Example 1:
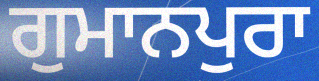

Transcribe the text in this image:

ਗੁਮਾਨਪੁਰਾ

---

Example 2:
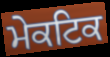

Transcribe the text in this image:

ਮੇਕਟਿਕ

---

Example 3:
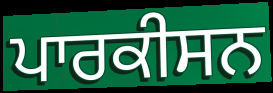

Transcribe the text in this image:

ਪਾਰਕੀਸਨ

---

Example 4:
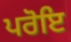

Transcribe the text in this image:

ਪਰੋਇ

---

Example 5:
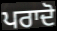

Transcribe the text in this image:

ਪਰਾਦੋ